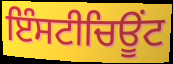
ਇੰਸਟੀਚਿਊਂਟ